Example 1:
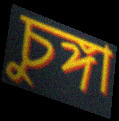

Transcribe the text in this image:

চুঙ্গা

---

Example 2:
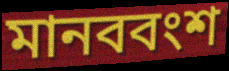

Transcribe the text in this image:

মানববংশ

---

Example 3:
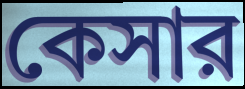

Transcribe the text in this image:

কেসার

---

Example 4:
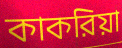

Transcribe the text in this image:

কাকরিয়া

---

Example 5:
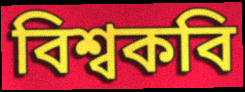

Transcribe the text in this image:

বিশ্বকবি